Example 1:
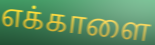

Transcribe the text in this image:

எக்காளை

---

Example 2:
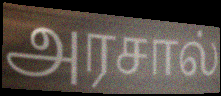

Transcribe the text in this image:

அரசால்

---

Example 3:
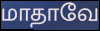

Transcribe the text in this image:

மாதாவே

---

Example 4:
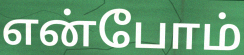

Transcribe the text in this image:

என்போம்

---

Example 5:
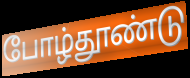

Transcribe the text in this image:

போழ்தூண்டு